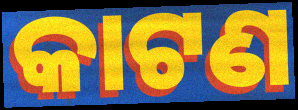
କାଟଣ